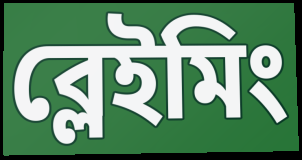
ব্লেইমিং